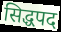
सिद्धपद